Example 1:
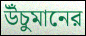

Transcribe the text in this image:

উঁচুমানের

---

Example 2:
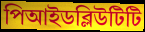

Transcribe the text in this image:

পিআইডব্লিউটিটি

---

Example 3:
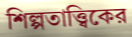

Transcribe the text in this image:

শিল্পতাত্ত্বিকের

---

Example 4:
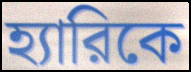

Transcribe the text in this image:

হ্যারিকে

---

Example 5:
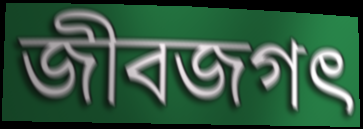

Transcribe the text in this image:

জীবজগৎ